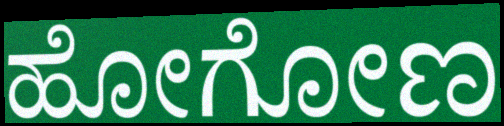
ಹೋಗೋಣ